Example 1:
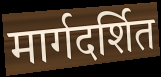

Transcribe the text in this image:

मार्गदर्शित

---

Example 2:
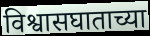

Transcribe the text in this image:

विश्वासघाताच्या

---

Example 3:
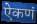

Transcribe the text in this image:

ऐकणं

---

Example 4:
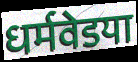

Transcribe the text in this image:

धर्मवेडया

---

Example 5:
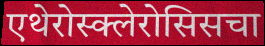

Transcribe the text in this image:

एथेरोस्क्लेरोसिसचा